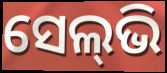
ସେଲ୍‌ଭି